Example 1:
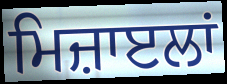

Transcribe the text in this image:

ਮਿਜ਼ਾੲਲਾਂ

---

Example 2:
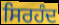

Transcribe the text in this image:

ਸਿਰਹੰਦ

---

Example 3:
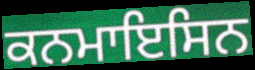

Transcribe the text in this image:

ਕਨਮਾਇਸਿਨ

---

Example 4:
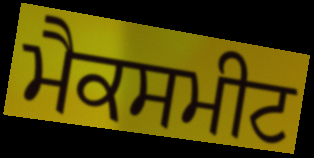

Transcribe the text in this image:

ਮੈਕਸਮੀਟ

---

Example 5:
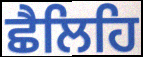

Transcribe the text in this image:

ਛੈਲਿਹਿ